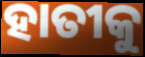
ହାତୀକୁ